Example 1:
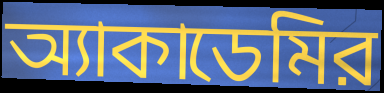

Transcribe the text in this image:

অ্যাকাডেমির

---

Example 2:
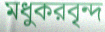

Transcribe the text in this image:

মধুকরবৃন্দ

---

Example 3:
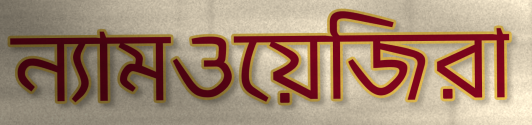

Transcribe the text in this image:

ন্যামওয়েজিরা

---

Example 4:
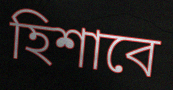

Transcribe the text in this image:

হিশাবে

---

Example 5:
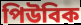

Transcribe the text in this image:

পিউবিক